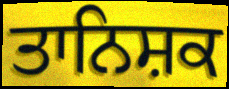
ਤਾਨਿਸ਼ਕ